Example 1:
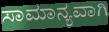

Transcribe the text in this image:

ಸಾಮಾನ್ಯವಾಗಿ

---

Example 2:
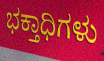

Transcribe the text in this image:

ಭಕ್ತಾಧಿಗಳು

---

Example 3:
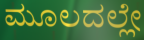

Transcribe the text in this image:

ಮೂಲದಲ್ಲೇ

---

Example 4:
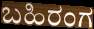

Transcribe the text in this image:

ಬಹಿರಂಗ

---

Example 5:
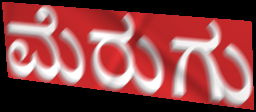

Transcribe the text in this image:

ಮೆರುಗು